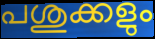
പശുക്കളും